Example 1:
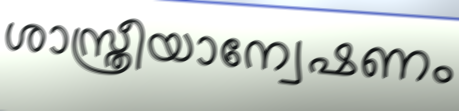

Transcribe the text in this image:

ശാസ്ത്രീയാന്വേഷണം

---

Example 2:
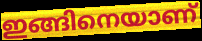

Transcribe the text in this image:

ഇങ്ങിനെയാണ്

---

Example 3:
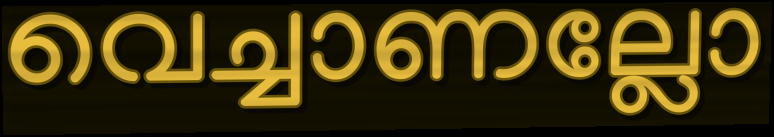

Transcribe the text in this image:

വെച്ചാണല്ലോ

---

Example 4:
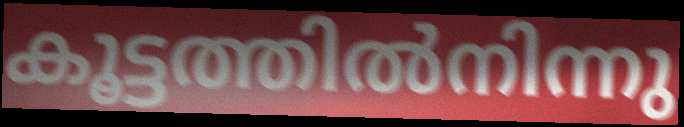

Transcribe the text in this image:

കൂട്ടത്തിൽനിന്നു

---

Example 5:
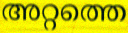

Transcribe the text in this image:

അറ്റത്തെ